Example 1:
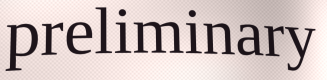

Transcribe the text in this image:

preliminary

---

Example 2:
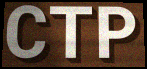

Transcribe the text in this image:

CTP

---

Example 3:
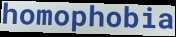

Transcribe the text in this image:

homophobia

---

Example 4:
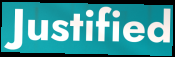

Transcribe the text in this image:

Justified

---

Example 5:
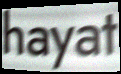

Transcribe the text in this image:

hayat